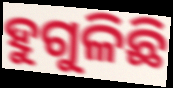
ହୁଗୁଳିଛି